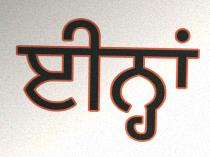
ਈਨ੍ਹਾਂ